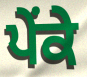
ਪੇਂਕੇ